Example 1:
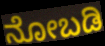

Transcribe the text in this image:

ನೋಬಡಿ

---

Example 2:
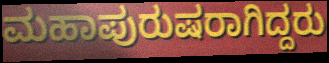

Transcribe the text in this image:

ಮಹಾಪುರುಷರಾಗಿದ್ದರು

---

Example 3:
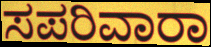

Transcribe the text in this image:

ಸಪರಿವಾರಾ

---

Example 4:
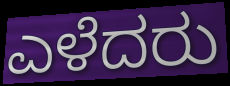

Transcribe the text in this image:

ಎಳೆದರು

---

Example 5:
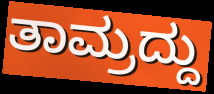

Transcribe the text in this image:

ತಾಮ್ರದ್ದು